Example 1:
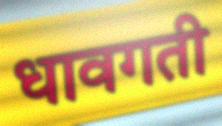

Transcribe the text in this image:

धावगती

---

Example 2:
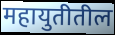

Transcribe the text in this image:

महायुतीतील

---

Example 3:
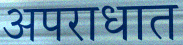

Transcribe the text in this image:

अपराधात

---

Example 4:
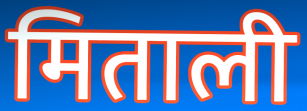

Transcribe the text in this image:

मिताली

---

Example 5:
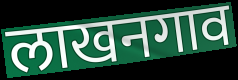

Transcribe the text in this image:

लाखनगाव